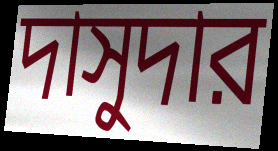
দাসুদার